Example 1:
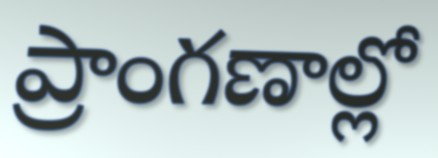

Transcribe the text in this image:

ప్రాంగణాల్లో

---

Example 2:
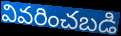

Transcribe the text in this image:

వివరించబడి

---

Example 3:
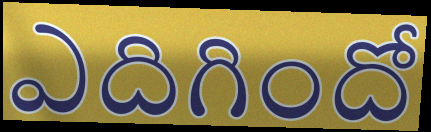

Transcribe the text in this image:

ఎదిగిందో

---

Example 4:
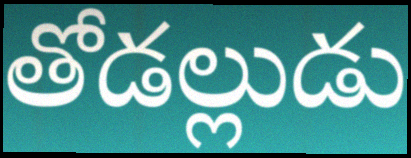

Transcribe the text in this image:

తోడల్లుడు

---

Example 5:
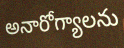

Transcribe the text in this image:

అనారోగ్యాలను